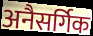
अनैसर्गिक